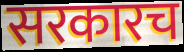
सरकारच